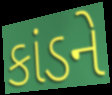
કાંડને